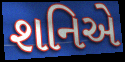
શનિએ